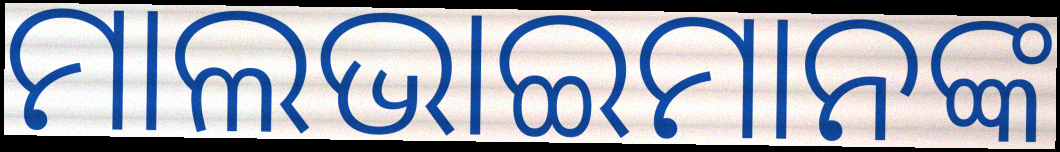
ମାଲଭାଇମାନଙ୍କ